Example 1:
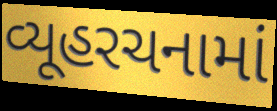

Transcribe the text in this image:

વ્યૂહરચનામાં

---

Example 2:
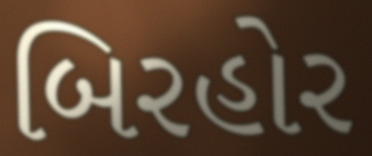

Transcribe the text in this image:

બિરહોર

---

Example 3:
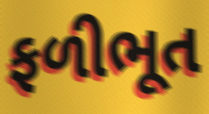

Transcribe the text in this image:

ફળીભૂત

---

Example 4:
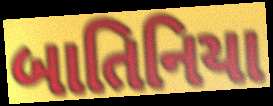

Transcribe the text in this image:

બાતિનિયા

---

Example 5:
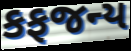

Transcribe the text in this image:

કફજન્ય